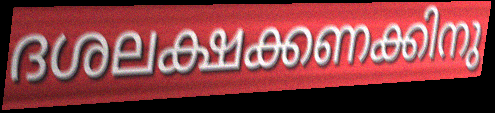
ദശലക്ഷക്കണക്കിനു